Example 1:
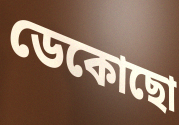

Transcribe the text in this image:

ডেকোছো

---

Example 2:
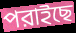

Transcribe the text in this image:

পরাইছে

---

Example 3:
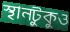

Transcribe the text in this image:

স্থানটুকুও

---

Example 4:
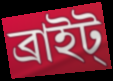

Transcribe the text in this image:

ব্রাইট্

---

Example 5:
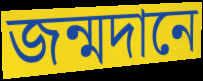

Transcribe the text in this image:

জন্মদানে